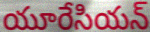
యూరేసియన్